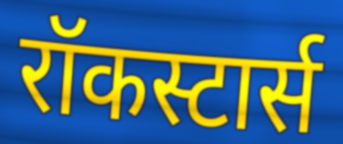
रॉकस्टार्स